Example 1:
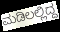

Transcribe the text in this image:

ಮಡಿಲಲ್ಲಿದ್ದ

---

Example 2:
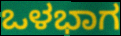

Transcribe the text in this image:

ಒಳಭಾಗ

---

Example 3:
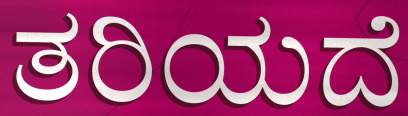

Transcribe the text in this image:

ತರಿಯದೆ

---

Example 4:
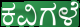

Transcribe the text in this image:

ಕವಿಗಳೆ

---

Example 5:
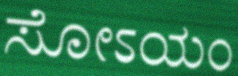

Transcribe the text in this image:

ಸೋಽಯಂ